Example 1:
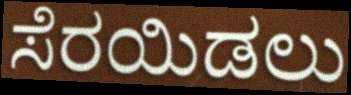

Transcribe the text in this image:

ಸೆರಯಿಡಲು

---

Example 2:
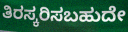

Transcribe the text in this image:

ತಿರಸ್ಕರಿಸಬಹುದೇ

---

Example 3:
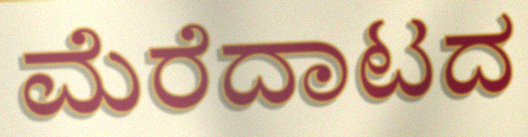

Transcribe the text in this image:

ಮೆರೆದಾಟದ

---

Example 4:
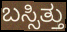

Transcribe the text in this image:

ಬಸ್ಸಿತ್ತು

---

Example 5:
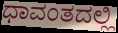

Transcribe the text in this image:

ಧಾವಂತದಲ್ಲಿ